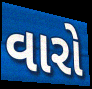
વારો